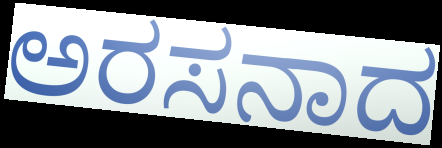
ಅರಸನಾದ